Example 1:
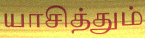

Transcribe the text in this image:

யாசித்தும்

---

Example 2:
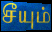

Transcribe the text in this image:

சீயும்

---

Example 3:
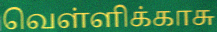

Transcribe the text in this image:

வெள்ளிக்காசு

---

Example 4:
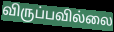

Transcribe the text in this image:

விருப்பவில்லை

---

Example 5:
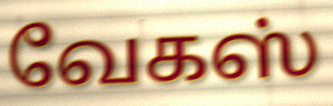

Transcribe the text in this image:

வேகஸ்